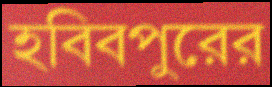
হবিবপুরের